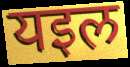
यइल